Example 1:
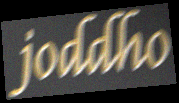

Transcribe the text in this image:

joddho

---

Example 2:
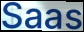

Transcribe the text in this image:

Saas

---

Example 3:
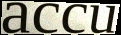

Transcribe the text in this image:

accu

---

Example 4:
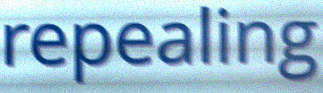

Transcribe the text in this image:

repealing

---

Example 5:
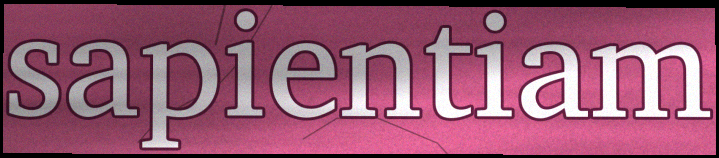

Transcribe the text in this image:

sapientiam